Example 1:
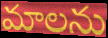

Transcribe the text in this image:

మాలను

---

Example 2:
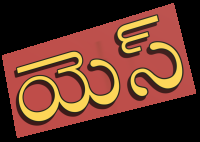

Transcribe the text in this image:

యెస్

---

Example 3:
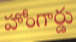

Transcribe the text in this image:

హోంగార్డు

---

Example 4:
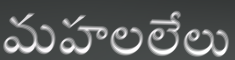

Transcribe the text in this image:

మహలలేలు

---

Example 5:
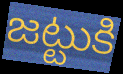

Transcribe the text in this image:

జట్టుకి